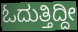
ಓದುತ್ತಿದ್ದೀ